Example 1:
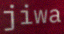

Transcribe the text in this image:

jiwa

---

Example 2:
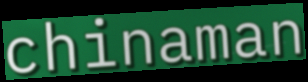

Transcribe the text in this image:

chinaman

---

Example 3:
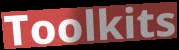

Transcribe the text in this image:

Toolkits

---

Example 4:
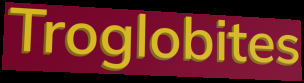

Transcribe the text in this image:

Troglobites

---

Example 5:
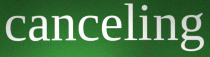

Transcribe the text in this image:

canceling